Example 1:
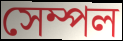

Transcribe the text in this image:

সেম্পল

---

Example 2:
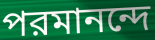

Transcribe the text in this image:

পরমানন্দে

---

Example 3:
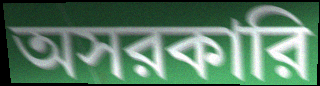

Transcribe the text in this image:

অসরকারি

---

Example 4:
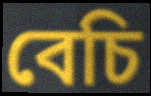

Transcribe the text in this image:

বেচি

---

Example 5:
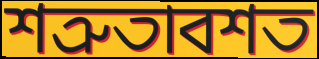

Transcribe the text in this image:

শত্রুতাবশত